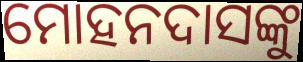
ମୋହନଦାସଙ୍କୁ